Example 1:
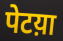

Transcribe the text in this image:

पेटय़ा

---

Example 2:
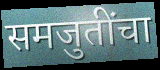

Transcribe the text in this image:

समजुतींचा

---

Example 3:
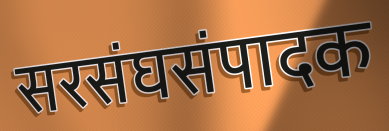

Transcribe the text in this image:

सरसंघसंपादक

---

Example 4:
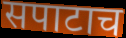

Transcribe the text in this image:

सपाटाच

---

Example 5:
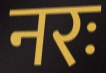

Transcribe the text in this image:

नरः